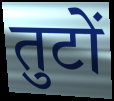
तुटों